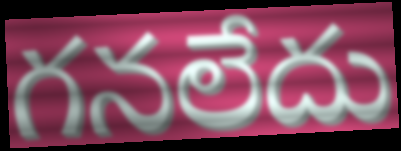
గనలేదు